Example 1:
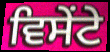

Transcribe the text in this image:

ਵਿਸੇਂਟੇ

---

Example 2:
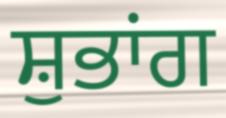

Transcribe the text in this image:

ਸ਼ੁਭਾਂਗ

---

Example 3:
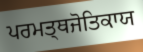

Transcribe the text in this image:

ਪਰਮਤ੍ਥਜੋਤਿਕਾਯ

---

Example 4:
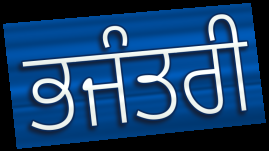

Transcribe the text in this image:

ਭਜੰਤਰੀ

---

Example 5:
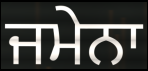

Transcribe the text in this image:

ਜਮੇਨਾ